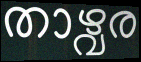
താഴ്വര